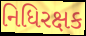
નિધિરક્ષક